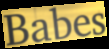
Babes